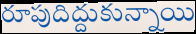
రూపుదిద్దుకున్నాయి